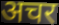
अचर